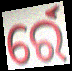
ର୍ରେ